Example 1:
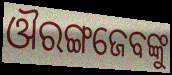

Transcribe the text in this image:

ଔରଙ୍ଗଜେବଙ୍କୁ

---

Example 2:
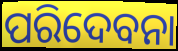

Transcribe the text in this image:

ପରିଦେବନା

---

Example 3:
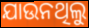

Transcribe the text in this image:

ଯାଉନଥିଲୁ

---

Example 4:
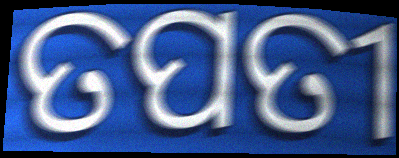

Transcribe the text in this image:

ତପତୀ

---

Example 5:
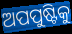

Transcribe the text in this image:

ଅପପୁଷ୍ଟିକୁ